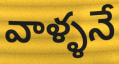
వాళ్ళనే